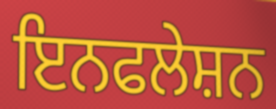
ਇਨਫਲੇਸ਼ਨ